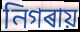
নিগৰায়